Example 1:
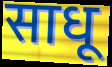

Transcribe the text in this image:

साधू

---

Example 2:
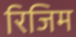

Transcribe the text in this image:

रिजिम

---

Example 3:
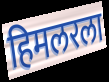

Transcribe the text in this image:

हिमलरला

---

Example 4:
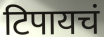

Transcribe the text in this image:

टिपायचं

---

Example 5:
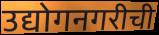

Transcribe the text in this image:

उद्योगनगरीची